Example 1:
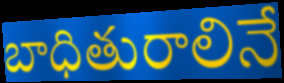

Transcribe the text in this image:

బాధితురాలినే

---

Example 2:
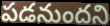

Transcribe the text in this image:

పడనుందని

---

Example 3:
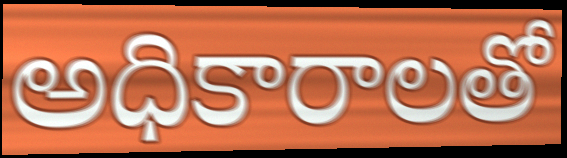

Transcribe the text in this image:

అధికారాలతో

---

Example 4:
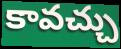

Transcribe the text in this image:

కావచ్చు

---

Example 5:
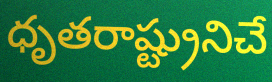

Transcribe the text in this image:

ధృతరాష్ట్రునిచే